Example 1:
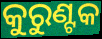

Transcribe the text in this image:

କୁରୁଣ୍ଟକ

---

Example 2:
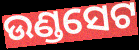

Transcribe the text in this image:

ଉଣ୍ଡସେଟ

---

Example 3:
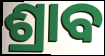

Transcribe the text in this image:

ଶ୍ରାବ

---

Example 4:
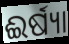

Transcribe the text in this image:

ଈର୍ଷ୍ୟା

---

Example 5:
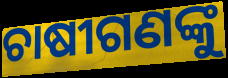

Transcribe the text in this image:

ଚାଷୀଗଣଙ୍କୁ